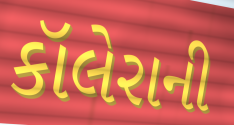
કૉલેરાની